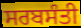
ਸਰਬਸੰਤੀ